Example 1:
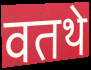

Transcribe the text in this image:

वतथे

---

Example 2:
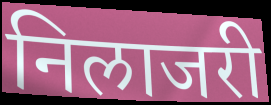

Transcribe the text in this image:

निलाजरी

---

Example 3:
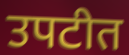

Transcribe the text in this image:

उपटीत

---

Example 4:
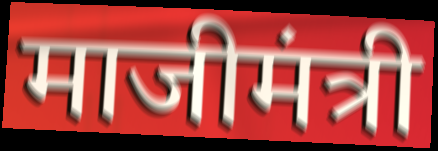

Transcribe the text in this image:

माजीमंत्री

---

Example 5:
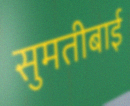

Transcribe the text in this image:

सुमतीबाई